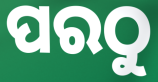
ପରଠୁ